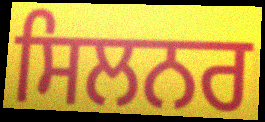
ਸਿਲਨਰ